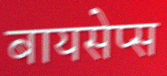
बायसेप्स